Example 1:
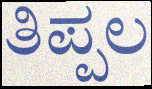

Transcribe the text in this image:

ತಿಪ್ಪಲ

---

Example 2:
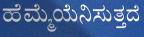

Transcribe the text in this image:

ಹೆಮ್ಮೆಯೆನಿಸುತ್ತದೆ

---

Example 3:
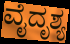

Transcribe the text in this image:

ವೈದೃಶ್ಯ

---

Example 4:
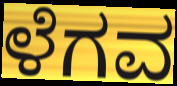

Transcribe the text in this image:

ಳೆಗವ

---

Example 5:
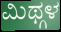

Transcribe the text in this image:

ಮಿಥ್ಗಳ